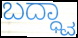
ಬದ್ಧ್ವಾ